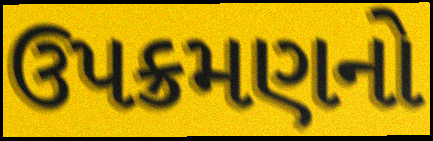
ઉપક્રમણનો